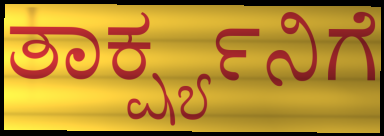
ತಾರ್ಕ್ಷ್ಯನಿಗೆ